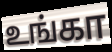
உங்கா